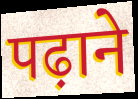
पढ़ाने